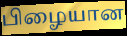
பிழையான